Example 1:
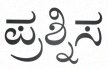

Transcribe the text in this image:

ಪ್ರಶ್ನಿಸ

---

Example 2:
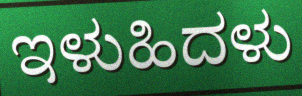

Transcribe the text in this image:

ಇಳುಹಿದಳು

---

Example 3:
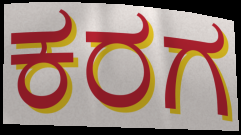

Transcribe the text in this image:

ಕರಗ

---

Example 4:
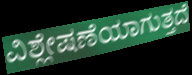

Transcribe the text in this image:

ವಿಶ್ಲೇಷಣೆಯಾಗುತ್ತದೆ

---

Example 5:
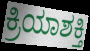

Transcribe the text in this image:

ಕ್ರಿಯಾಶಕ್ತಿ